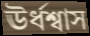
ঊর্ধশ্বাস